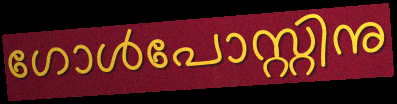
ഗോൾപോസ്റ്റിനു